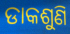
ଡାକଶୁଣି